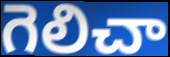
గెలిచా